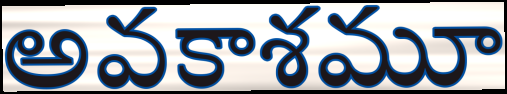
అవకాశమూ